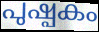
പുഷ്പകം